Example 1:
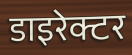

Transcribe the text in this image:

डाइरेक्टर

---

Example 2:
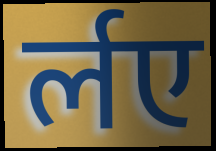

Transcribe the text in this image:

र्लए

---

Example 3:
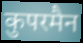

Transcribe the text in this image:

कुपरमैन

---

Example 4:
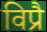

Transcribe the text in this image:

विप्रै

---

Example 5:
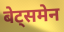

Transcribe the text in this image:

बेट्समेन